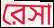
রেসা